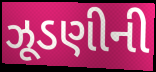
ઝૂડણીની